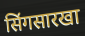
सिंगसारखा